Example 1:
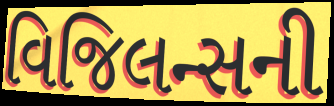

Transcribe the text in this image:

વિજિલન્સની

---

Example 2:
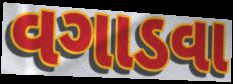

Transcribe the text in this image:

વગાડવા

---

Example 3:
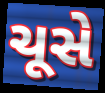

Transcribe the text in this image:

ચૂસે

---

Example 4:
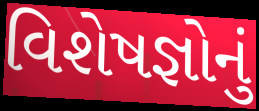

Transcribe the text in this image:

વિશેષજ્ઞોનું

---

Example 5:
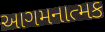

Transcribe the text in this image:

આગમનાત્મક